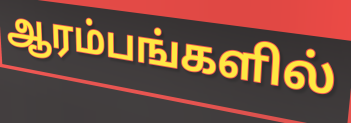
ஆரம்பங்களில்